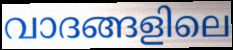
വാദങ്ങളിലെ